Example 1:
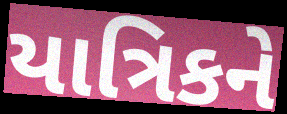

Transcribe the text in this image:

યાત્રિકને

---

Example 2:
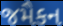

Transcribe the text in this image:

જમૈકન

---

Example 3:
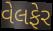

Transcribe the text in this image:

વેલફેર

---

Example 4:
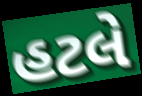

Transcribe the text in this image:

હટલે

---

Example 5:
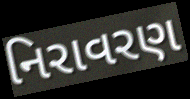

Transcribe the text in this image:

નિરાવરણ